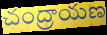
చంద్రాయణ